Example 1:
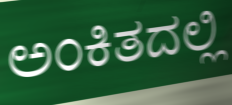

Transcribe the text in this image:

ಅಂಕಿತದಲ್ಲಿ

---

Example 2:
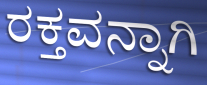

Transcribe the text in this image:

ರಕ್ತವನ್ನಾಗಿ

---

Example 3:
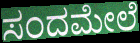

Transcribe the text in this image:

ಸಂದಮೇಲೆ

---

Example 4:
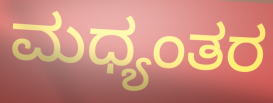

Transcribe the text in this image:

ಮಧ್ಯಂತರ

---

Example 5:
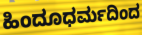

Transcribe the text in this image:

ಹಿಂದೂಧರ್ಮದಿಂದ